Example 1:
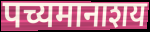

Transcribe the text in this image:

पच्यमानाशय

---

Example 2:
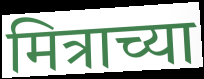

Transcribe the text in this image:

मित्राच्या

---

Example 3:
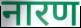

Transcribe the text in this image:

नारण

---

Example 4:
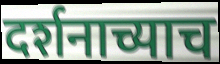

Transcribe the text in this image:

दर्शनाच्याच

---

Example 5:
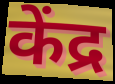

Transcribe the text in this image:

केंद्र